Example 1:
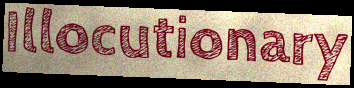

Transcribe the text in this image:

Illocutionary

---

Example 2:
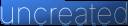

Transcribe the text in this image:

uncreated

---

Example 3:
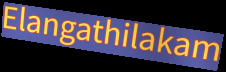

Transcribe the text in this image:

Elangathilakam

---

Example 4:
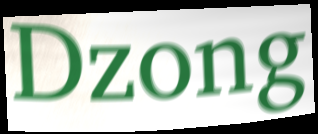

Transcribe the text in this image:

Dzong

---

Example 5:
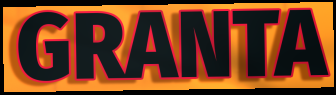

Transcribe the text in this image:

GRANTA